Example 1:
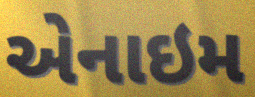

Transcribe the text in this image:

એનાઇમ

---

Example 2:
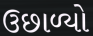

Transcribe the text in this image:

ઉછાળ્યો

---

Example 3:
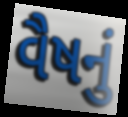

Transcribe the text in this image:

વૈષનું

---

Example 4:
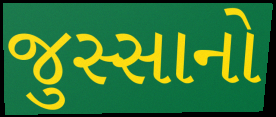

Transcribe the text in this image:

જુસ્સાનો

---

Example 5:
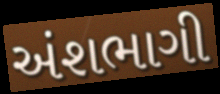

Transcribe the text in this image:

અંશભાગી